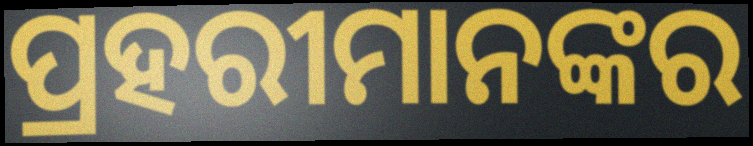
ପ୍ରହରୀମାନଙ୍କର